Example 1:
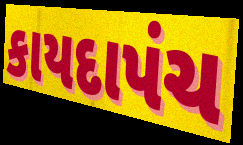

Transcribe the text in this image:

કાયદાપંચ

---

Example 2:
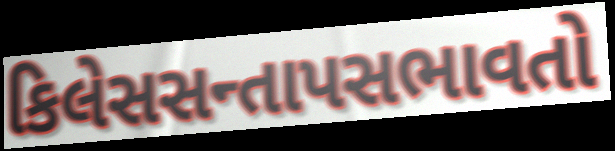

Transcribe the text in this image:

કિલેસસન્તાપસભાવતો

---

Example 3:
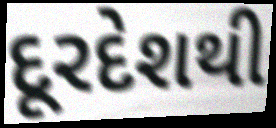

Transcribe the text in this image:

દૂરદેશથી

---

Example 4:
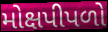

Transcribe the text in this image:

મોક્ષપીપળો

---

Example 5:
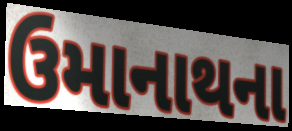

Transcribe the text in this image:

ઉમાનાથના